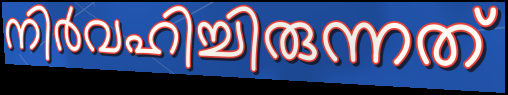
നിർവഹിച്ചിരുന്നത്